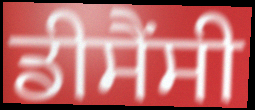
ਡੀਸੈਂਸੀ